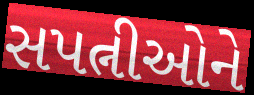
સપત્નીઓને